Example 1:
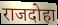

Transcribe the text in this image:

राजदोहा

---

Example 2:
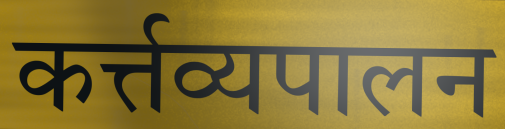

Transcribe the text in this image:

कर्त्तव्यपालन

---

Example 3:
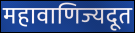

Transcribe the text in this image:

महावाणिज्यदूत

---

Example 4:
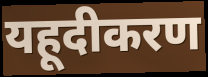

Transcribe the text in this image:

यहूदीकरण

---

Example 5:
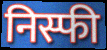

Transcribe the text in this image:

निस्फी